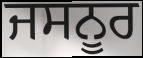
ਜਸਨੂਰ